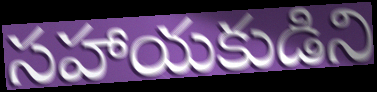
సహాయకుడిని